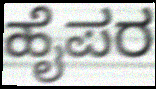
ಹೈಪರ